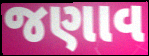
જણાવ